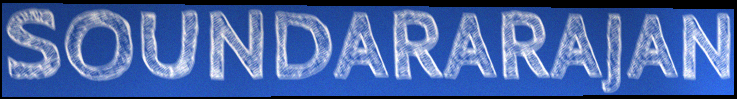
SOUNDARARAJAN